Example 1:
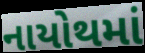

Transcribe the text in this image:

નાયોથમાં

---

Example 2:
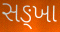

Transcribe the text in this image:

સઙ્ખા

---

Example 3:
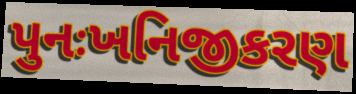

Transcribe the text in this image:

પુનઃખનિજીકરણ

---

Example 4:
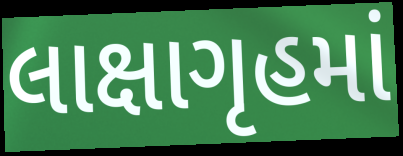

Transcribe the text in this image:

લાક્ષાગૃહમાં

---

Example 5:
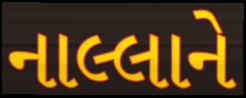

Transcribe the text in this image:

નાલ્લાને